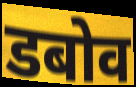
डबोव